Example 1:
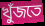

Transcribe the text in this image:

খুঁজতে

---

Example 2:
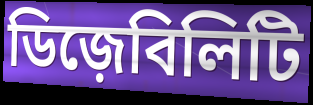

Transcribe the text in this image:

ডিজ়েবিলিটি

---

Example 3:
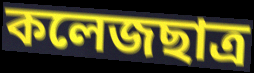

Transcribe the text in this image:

কলেজছাত্র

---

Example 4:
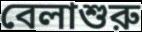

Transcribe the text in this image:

বেলাশুরু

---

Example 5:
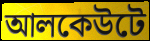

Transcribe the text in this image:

আলকেউটে